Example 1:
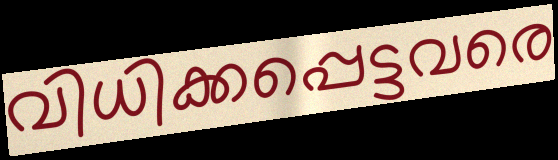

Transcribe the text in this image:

വിധിക്കപ്പെട്ടവരെ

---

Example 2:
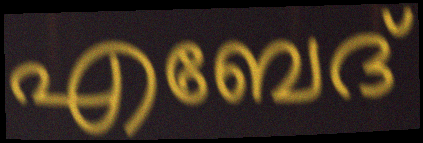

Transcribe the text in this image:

എബേദ്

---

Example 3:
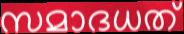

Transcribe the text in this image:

സമാദധത്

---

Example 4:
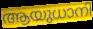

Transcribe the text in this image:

ആയുധാനി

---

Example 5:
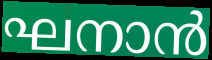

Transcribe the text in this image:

ഘനാൻ